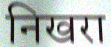
निखरा